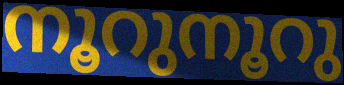
നൂറുനൂറു